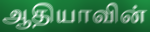
ஆதியாவின்